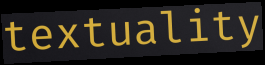
textuality